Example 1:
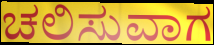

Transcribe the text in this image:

ಚಲಿಸುವಾಗ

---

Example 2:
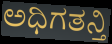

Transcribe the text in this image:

ಅಧಿಗತನ್ತಿ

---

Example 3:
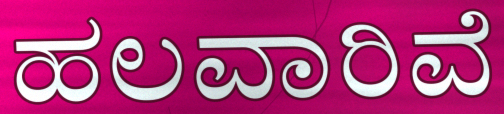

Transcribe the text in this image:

ಹಲವಾರಿವೆ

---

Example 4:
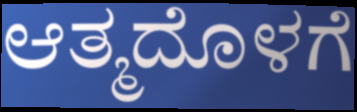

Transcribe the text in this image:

ಆತ್ಮದೊಳಗೆ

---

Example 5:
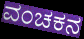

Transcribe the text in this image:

ವಂಚಕನ